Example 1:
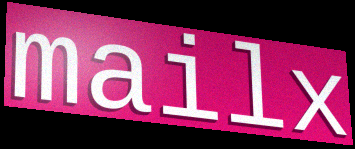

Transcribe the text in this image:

mailx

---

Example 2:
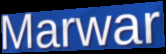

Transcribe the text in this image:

Marwar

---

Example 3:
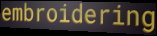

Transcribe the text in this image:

embroidering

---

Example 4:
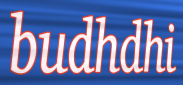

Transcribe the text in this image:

budhdhi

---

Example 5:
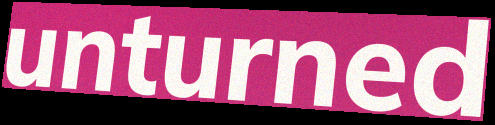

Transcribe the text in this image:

unturned